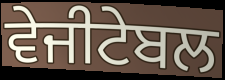
ਵੇਜੀਟੇਬਲ